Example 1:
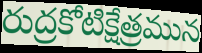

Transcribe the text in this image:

రుద్రకోటిక్షేత్రమున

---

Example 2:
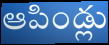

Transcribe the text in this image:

ఆపిండ్లు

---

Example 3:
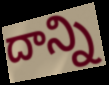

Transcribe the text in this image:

దాన్ని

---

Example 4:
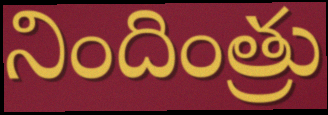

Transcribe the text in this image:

నిందింత్రు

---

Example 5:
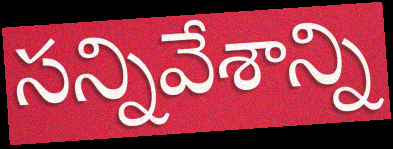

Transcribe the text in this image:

సన్నివేశాన్ని